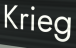
Krieg